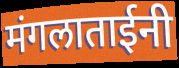
मंगलाताईनी